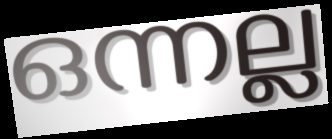
ഒന്നല്ല